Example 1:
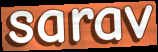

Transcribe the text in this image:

sarav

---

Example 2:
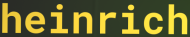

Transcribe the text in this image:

heinrich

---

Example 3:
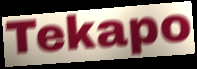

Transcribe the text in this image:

Tekapo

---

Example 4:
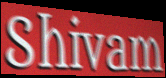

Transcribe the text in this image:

Shivam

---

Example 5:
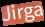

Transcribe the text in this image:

Jirga